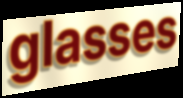
glasses